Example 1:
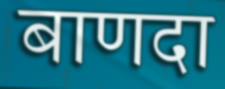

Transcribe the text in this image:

बाणदा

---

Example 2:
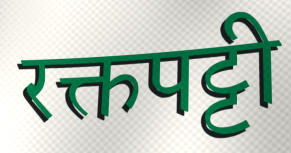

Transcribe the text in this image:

रक्तपट्टी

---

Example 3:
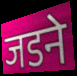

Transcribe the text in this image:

जडने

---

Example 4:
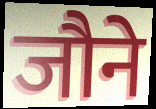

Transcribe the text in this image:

जौने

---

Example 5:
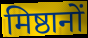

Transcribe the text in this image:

मिष्ठानों